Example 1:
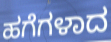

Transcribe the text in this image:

ಹಗೆಗಳಾದ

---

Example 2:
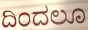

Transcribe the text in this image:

ದಿಂದಲೂ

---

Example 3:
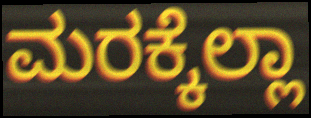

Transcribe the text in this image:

ಮರಕ್ಕೆಲ್ಲಾ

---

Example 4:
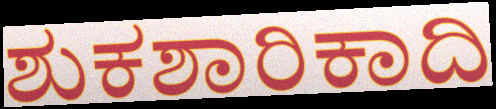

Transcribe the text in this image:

ಶುಕಶಾರಿಕಾದಿ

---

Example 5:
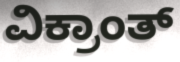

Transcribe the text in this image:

ವಿಕ್ರಾಂತ್